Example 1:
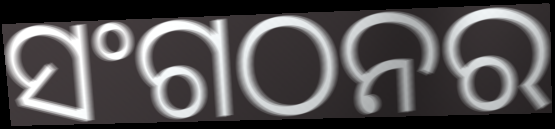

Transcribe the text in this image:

ସଂଗଠନର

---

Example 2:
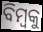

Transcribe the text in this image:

ବିମ୍ବକୁ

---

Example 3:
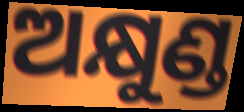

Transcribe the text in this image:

ଅକ୍ଷୁଣ୍ଡ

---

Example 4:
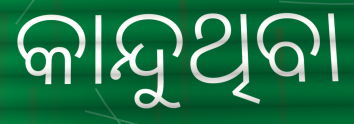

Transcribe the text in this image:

କାନ୍ଦୁଥିବା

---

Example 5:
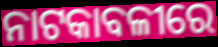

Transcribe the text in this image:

ନାଟକାବଳୀରେ